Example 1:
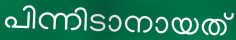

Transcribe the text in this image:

പിന്നിടാനായത്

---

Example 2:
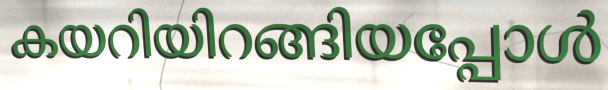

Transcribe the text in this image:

കയറിയിറങ്ങിയപ്പോൾ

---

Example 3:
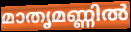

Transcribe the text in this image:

മാതൃമണ്ണിൽ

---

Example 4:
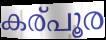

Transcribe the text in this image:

കര്പൂര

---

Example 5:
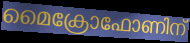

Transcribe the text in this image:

മൈക്രോഫോണിന്